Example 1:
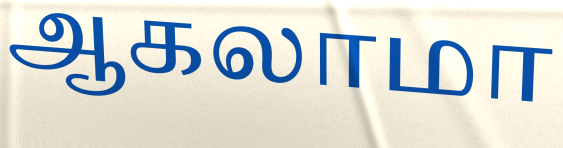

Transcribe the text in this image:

ஆகலாமா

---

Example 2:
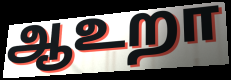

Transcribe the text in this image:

ஆஉறா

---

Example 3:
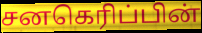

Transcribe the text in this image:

சனகெரிப்பின்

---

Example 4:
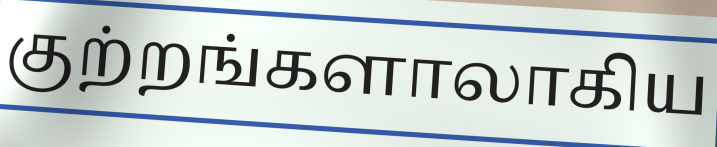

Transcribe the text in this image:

குற்றங்களாலாகிய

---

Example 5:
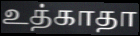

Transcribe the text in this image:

உத்காதா